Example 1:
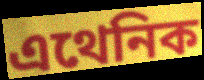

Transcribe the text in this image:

এথেনিক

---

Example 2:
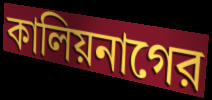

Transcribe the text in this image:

কালিয়নাগের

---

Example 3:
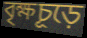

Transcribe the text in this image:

বৃক্ষচূড়ে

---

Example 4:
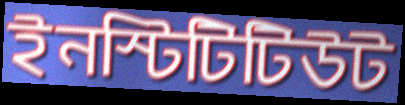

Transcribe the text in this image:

ইনস্টিটিটিউট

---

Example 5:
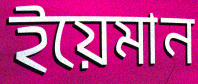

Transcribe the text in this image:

ইয়েমান